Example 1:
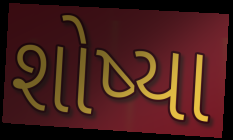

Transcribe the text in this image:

શોષ્યા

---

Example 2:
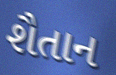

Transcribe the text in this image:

શૈતાન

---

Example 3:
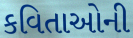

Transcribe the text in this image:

કવિતાઓની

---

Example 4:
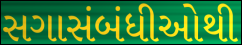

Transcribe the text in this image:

સગાસંબંધીઓથી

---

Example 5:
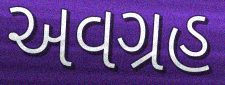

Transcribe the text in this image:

અવગ્રહ